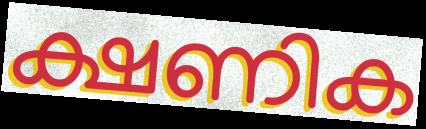
ക്ഷണിക